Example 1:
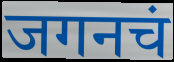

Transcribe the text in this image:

जगनचं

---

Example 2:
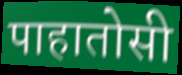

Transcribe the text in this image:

पाहातोसी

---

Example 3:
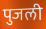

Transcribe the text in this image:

पुजली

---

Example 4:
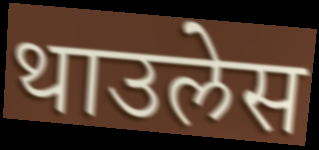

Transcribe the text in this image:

थाउलेस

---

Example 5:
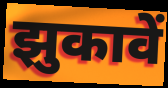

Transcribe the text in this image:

झुकावें